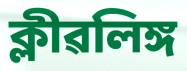
ক্লীৱলিঙ্গ